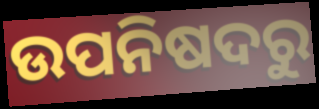
ଉପନିଷଦରୁ